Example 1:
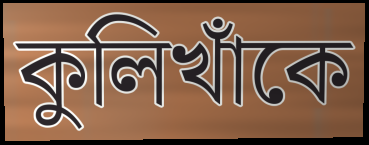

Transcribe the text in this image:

কুলিখাঁকে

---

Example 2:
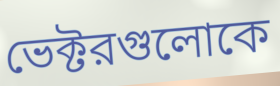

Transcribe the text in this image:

ভেক্টরগুলোকে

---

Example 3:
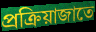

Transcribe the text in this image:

প্রক্রিয়াজাতে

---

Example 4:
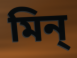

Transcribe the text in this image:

মিন্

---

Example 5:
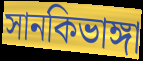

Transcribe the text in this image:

সানকিভাঙ্গা